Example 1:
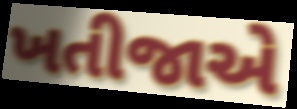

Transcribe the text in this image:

ખતીજાએ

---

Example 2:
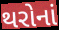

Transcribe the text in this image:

થરોનાં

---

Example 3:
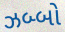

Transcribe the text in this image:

ઝબ્બો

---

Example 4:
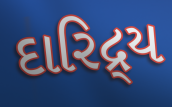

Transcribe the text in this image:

દારિદ્ર્ય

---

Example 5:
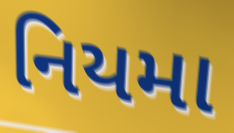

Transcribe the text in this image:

નિયમા